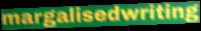
margalisedwriting